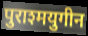
पुराश्मयुगीन